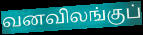
வனவிலங்குப்